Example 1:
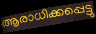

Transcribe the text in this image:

ആരാധിക്കപ്പെട്ടു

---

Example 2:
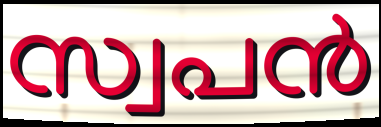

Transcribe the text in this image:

സ്വപൻ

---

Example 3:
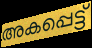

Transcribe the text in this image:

അകപ്പെട്ട്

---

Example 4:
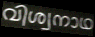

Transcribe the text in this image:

വിശ്വനാഥ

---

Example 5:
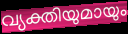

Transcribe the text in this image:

വ്യക്തിയുമായും